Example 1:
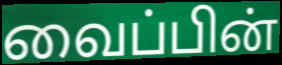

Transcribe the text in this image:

வைப்பின்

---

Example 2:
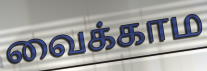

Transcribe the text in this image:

வைக்காம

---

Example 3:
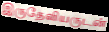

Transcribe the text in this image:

இருதேவியருடன்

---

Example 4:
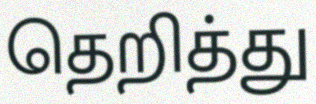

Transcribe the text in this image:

தெறித்து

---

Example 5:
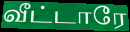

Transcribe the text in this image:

வீட்டாரே